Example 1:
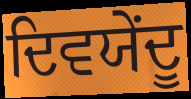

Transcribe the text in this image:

ਦਿਵਯੇਂਦੂ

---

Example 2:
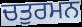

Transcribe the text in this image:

ਚਤੁਰਮਨ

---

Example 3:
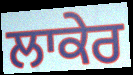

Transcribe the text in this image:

ਲਾਕੇਰ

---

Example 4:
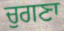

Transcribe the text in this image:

ਚੁਗਣਾ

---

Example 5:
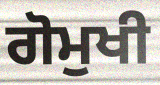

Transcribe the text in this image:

ਗੋਮੁਖੀ